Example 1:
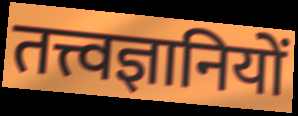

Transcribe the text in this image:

तत्त्वज्ञानियों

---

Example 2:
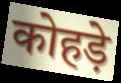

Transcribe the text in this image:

कोहड़े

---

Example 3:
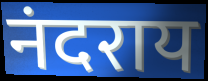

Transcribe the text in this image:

नंदराय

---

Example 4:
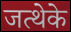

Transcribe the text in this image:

जत्थेके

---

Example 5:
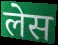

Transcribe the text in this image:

लेस